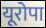
यूरोपा